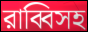
রাব্বিসহ